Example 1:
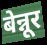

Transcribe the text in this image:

बेन्नूर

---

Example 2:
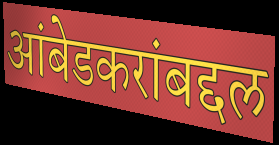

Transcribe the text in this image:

आंबेडकरांबद्दल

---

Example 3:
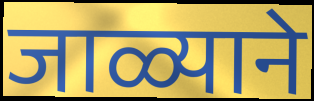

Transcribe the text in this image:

जाळ्याने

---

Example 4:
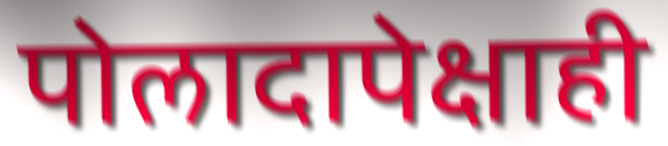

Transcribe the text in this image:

पोलादापेक्षाही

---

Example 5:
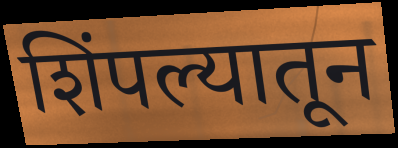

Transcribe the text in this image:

शिंपल्यातून